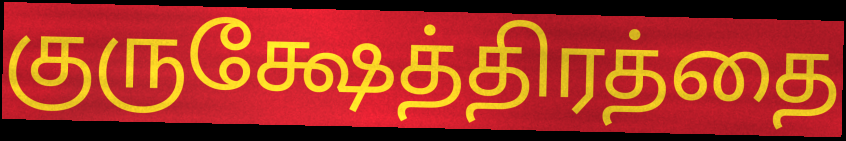
குருக்ஷேத்திரத்தை